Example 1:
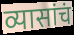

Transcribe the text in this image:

व्यासांचं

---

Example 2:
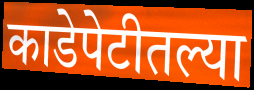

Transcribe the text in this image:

काडेपेटीतल्या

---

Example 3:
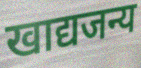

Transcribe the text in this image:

खाद्यजन्य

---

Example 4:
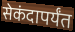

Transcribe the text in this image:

सेकंदापर्यंत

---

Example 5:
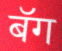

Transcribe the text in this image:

बॅग